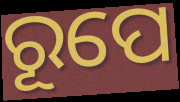
ରୂପେ